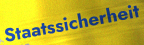
Staatssicherheit